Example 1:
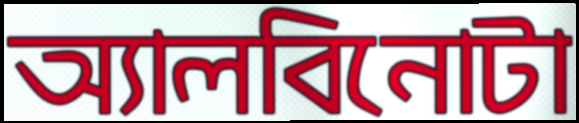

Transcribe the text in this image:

অ্যালবিনোটা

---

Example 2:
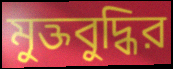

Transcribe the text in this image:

মুক্তবুদ্ধির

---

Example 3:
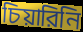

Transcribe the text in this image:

চিয়ারিনি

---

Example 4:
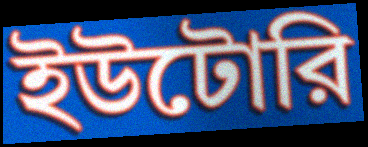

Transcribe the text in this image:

ইউটোরি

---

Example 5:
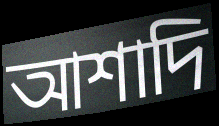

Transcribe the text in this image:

আশাদি